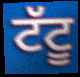
ਟੱਟੂ